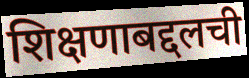
शिक्षणाबद्दलची